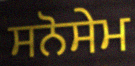
ਸਨੋਸੇਮ